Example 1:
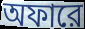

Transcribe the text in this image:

অফারে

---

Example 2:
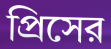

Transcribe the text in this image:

প্রিসের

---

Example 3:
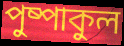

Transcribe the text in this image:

পুষ্পাকুল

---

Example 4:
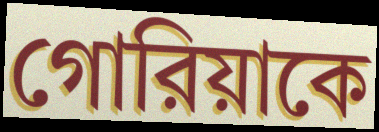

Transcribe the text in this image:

গোরিয়াকে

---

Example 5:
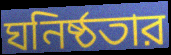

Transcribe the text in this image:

ঘনিষ্ঠতার